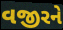
વજીરને